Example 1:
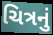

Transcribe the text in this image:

ચિત્રનું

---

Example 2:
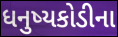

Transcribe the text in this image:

ધનુષ્યકોડીના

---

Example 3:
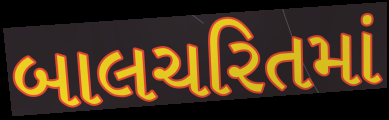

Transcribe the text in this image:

બાલચરિતમાં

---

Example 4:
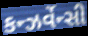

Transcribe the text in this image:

કન્ઝર્વેન્સી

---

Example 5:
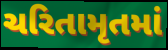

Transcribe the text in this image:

ચરિતામૃતમાં